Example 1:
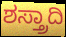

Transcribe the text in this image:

ಶಸ್ತ್ರಾದಿ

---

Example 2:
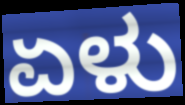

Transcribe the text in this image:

ಏಳು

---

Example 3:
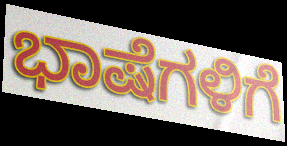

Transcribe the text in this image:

ಭಾಷೆಗಳಿಗೆ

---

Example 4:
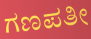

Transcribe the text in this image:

ಗಣಪತೀ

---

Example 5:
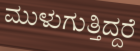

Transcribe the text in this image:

ಮುಳುಗುತ್ತಿದ್ದರೆ